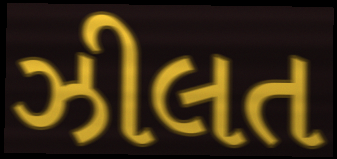
ઝીલત